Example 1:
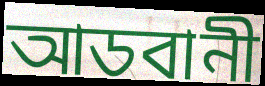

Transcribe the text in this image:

আডবানী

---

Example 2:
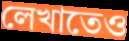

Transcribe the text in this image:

লেখাতেও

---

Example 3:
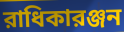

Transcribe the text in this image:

রাধিকারঞ্জন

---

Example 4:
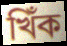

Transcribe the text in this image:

খিঁক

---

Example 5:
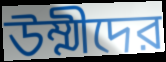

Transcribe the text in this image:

উম্মীদের